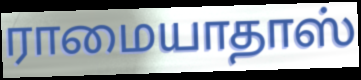
ராமையாதாஸ்